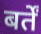
बर्तें